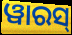
ୱାରସ୍